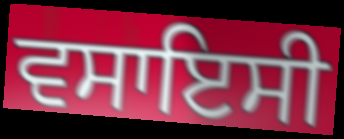
ਵਸਾਇਸੀ